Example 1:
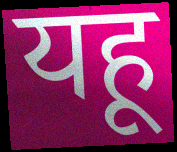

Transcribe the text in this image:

यहू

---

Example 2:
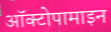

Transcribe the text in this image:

ऑक्टोपामाइन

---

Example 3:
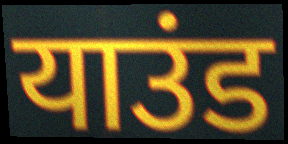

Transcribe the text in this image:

याउंड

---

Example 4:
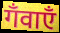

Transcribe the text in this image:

गँवाएँ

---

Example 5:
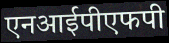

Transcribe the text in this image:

एनआईपीएफपी